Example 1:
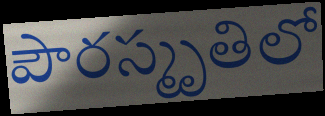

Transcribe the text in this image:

పౌరస్మృతిలో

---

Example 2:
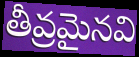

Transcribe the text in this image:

తీవ్రమైనవి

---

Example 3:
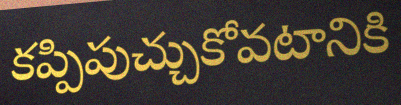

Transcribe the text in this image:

కప్పిపుచ్చుకోవటానికి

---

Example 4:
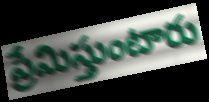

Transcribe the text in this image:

ప్రేమిస్తుంటారు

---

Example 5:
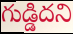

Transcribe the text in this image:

గుడ్డిదని